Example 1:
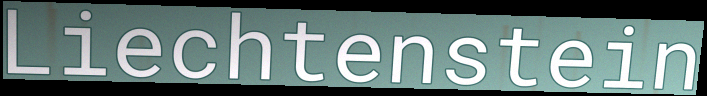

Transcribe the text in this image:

Liechtenstein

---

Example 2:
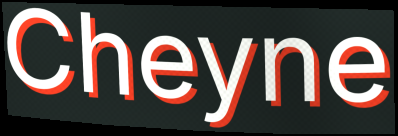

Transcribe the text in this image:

Cheyne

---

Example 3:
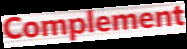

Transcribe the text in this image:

Complement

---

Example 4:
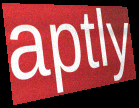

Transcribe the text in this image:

aptly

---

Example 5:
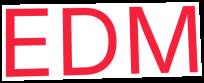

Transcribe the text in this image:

EDM